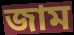
জাম